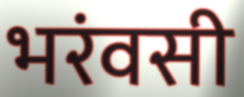
भरंवसी